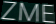
ZME